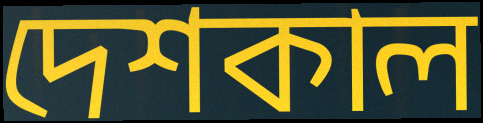
দেশকাল